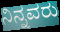
ನಿನ್ನವರು